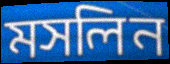
মসলিন